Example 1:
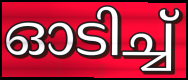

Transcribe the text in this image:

ഓടിച്ച്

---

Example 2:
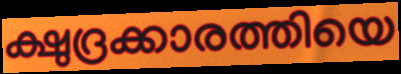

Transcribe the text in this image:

ക്ഷുദ്രക്കാരത്തിയെ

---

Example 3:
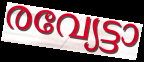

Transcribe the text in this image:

രവ്യേട്ടാ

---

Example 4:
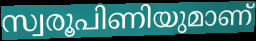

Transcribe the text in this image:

സ്വരൂപിണിയുമാണ്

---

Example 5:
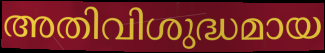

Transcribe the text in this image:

അതിവിശുദ്ധമായ